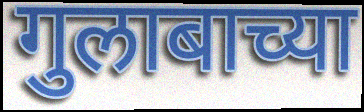
गुलाबाच्या